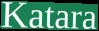
Katara